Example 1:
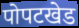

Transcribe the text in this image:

पोपटखेड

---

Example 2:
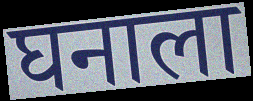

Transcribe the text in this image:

घनाला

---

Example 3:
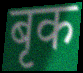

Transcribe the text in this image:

बृक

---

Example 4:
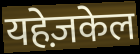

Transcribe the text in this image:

यहेज़केल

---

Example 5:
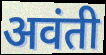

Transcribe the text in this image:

अवंती